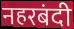
नहरबंदी